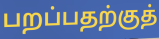
பறப்பதற்குத்